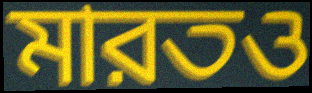
মারতও